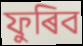
ফুৰিব